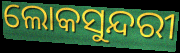
ଲୋକସୁନ୍ଦରୀ